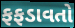
ફફડાવતો